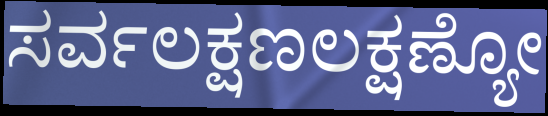
ಸರ್ವಲಕ್ಷಣಲಕ್ಷಣ್ಯೋ